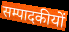
सम्पादकीयों